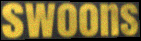
swoons